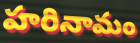
హరినామం